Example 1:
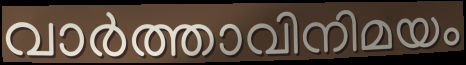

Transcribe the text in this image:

വാർത്താവിനിമയം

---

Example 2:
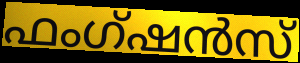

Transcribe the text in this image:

ഫംഗ്ഷൻസ്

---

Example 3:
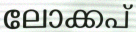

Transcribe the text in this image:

ലോക്കപ്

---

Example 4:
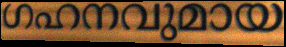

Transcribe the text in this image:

ഗഹനവുമായ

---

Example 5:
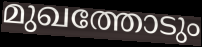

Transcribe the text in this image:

മുഖത്തോടും